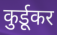
कुर्डूकर